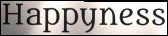
Happyness